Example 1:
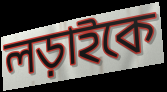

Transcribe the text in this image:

লড়াইকে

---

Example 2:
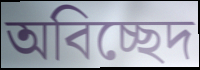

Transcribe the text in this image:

অবিচ্ছেদ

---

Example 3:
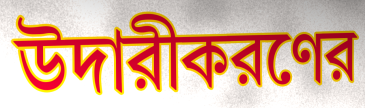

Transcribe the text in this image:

উদারীকরণের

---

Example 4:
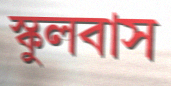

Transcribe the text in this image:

স্কুলবাস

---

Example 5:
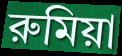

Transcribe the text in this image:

রুমিয়া